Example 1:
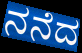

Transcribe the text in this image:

ನನೆದ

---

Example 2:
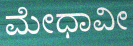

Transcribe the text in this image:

ಮೇಧಾವೀ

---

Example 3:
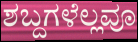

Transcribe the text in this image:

ಶಬ್ದಗಳೆಲ್ಲವೂ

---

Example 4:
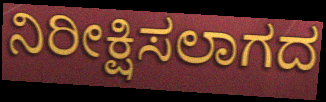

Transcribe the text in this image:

ನಿರೀಕ್ಷಿಸಲಾಗದ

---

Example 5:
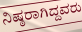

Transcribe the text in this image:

ನಿಷ್ಠರಾಗಿದ್ದವರು